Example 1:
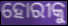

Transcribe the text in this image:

ହୋରୀକୁ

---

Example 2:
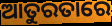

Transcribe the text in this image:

ଆତୁରତାରେ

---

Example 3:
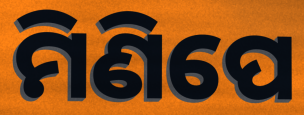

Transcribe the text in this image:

ମିଣିପେ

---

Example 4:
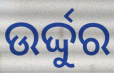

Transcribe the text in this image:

ଉର୍ଦ୍ଦୁର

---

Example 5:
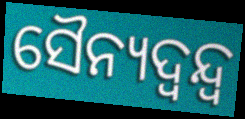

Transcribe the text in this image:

ସୈନ୍ୟଦ୍ୱନ୍ଦ୍ୱ